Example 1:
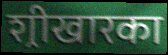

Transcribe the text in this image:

श्रीखारका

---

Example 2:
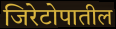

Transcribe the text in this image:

जिरेटोपातील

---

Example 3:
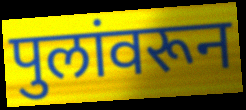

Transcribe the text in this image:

पुलांवरून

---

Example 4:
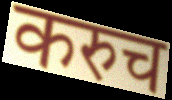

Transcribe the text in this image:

करुच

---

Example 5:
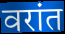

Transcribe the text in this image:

वरांत